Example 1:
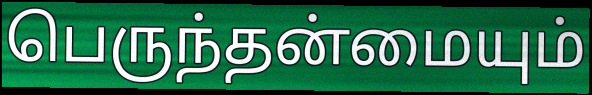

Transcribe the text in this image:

பெருந்தன்மையும்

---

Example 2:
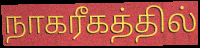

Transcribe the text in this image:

நாகரீகத்தில்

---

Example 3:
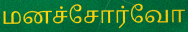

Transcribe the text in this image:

மனச்சோர்வோ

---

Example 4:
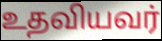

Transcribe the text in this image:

உதவியவர்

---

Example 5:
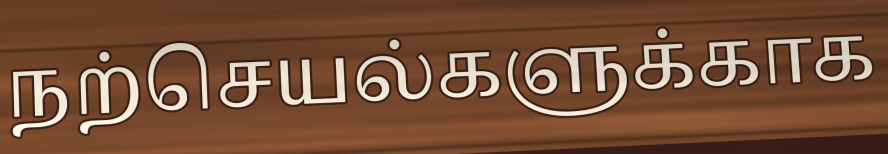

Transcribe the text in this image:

நற்செயல்களுக்காக